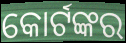
କୋର୍ଟଙ୍କର